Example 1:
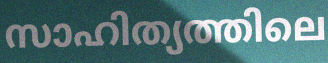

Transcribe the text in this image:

സാഹിത്യത്തിലെ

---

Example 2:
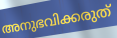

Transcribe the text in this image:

അനുഭവിക്കരുത്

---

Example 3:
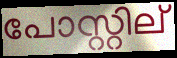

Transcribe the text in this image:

പോസ്റ്റില്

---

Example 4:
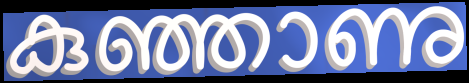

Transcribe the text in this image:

കുഞ്ഞാണു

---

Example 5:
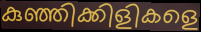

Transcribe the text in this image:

കുഞ്ഞിക്കിളികളെ